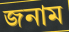
জনাম